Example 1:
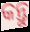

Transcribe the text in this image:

କନ୍ତୁ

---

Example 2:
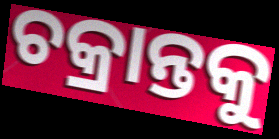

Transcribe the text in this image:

ଚକ୍ରାନ୍ତକୁ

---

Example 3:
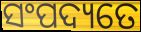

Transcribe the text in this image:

ସଂପଦ୍ୟତେ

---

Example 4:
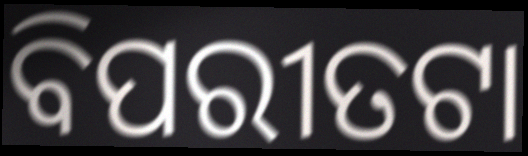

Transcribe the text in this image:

ବିପରୀତଟା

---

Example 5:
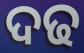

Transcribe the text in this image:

ଦଢ